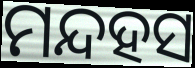
ମନ୍ଦହସ